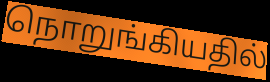
நொறுங்கியதில்